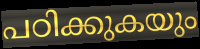
പഠിക്കുകയും